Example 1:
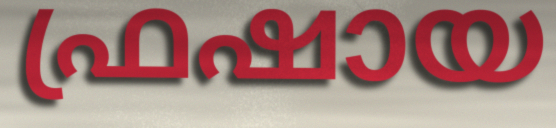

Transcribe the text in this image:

ഫ്രഷായ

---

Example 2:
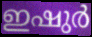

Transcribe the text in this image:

ഇഷുർ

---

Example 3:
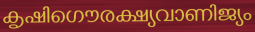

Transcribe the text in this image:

കൃഷിഗൌരക്ഷ്യവാണിജ്യം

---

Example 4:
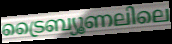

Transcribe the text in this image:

ട്രൈബ്യൂണലിലെ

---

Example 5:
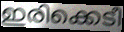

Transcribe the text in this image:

ഇരിക്കെടീ